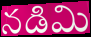
నడిమి